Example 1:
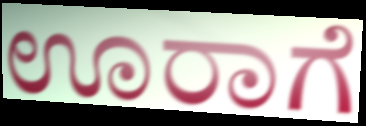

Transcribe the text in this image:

ಊರಾಗೆ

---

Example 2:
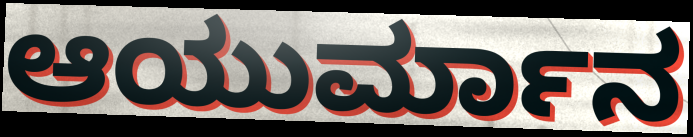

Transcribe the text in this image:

ಆಯುರ್ಮಾನ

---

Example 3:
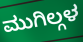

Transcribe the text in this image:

ಮುಗಿಲ್ಗಳ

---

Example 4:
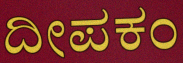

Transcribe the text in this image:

ದೀಪಕಂ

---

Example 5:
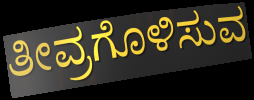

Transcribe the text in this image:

ತೀವ್ರಗೊಳಿಸುವ